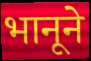
भानूने